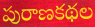
పురాణకథల